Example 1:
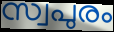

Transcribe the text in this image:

സ്വപുരം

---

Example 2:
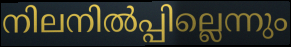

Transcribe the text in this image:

നിലനിൽപ്പില്ലെന്നും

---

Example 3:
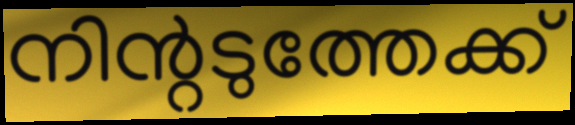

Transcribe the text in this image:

നിന്റടുത്തേക്ക്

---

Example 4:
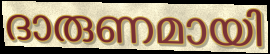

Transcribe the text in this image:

ദാരുണമായി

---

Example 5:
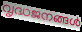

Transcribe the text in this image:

വൃദ്ധജനങ്ങൾ